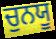
ਚੁਨਯੂ